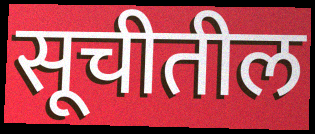
सूचीतील